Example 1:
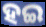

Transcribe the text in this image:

ହଇ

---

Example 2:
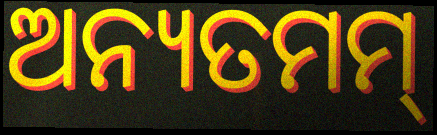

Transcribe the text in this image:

ଅନ୍ୟତମମ୍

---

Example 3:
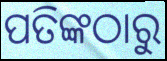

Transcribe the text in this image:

ପତିଙ୍କଠାରୁ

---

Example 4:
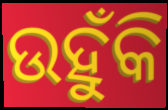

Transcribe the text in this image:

ଉହୁଁକି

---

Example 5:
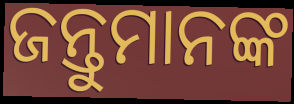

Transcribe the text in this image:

ଜନ୍ତୁମାନଙ୍କ